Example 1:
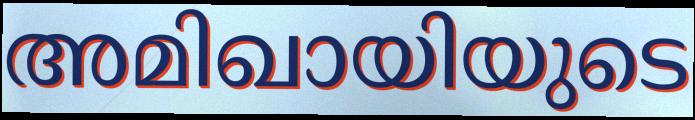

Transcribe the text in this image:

അമിഖായിയുടെ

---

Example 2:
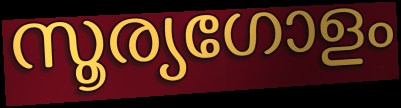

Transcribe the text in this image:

സൂര്യഗോളം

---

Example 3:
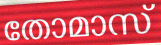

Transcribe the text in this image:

തോമാസ്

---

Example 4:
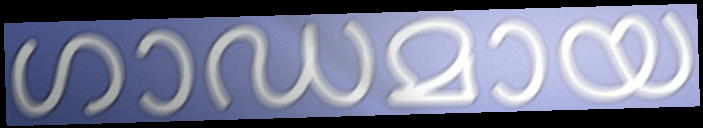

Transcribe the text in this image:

ഗാഡമായ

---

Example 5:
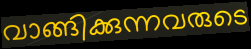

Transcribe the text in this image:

വാങ്ങിക്കുന്നവരുടെ